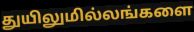
துயிலுமில்லங்களை